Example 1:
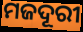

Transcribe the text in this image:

ମଜଦୂରୀ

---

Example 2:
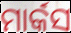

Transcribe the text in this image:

ମାର୍କସ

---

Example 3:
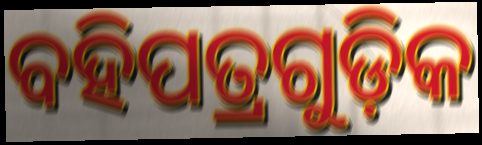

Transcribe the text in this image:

ବହିପତ୍ରଗୁଡ଼ିକ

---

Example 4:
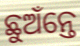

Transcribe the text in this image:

ଛୁଅଁନ୍ତେ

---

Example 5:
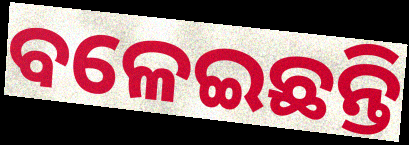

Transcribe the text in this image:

ବଳେଇଛନ୍ତି